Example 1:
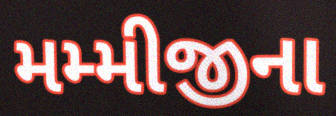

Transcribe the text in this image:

મમ્મીજીના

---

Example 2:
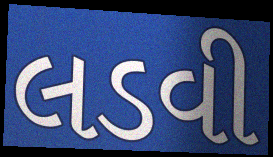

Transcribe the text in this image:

લડવી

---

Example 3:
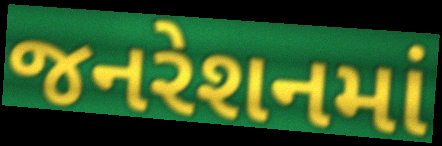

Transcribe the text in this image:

જનરેશનમાં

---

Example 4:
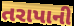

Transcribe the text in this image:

તરાપાની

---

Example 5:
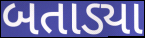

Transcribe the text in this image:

બતાડ્યા